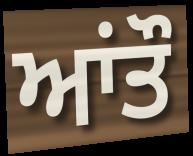
ਆਂਤੌ